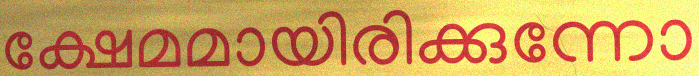
ക്ഷേമമായിരിക്കുന്നോ